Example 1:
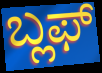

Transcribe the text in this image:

ಬ್ಲಫ್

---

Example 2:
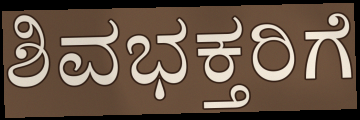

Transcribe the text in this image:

ಶಿವಭಕ್ತರಿಗೆ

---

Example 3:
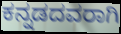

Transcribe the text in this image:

ಕನ್ನಡದವರಾಗಿ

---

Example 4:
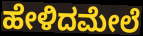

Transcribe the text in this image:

ಹೇಳಿದಮೇಲೆ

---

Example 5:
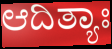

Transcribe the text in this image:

ಆದಿತ್ಯಾಃ